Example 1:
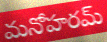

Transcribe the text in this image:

మనోహరమ్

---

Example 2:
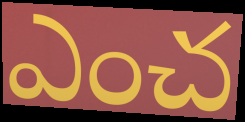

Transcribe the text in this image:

ఎంచ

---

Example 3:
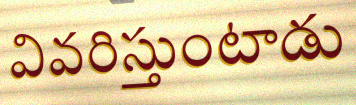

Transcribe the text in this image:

వివరిస్తుంటాడు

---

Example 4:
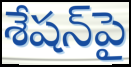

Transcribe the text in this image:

శేషన్‌పై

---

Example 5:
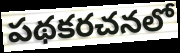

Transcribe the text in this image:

పథకరచనలో